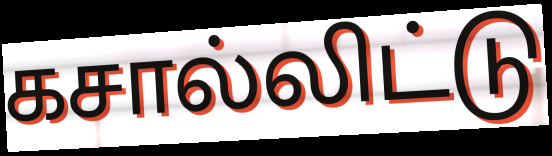
கசால்லிட்டு